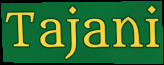
Tajani